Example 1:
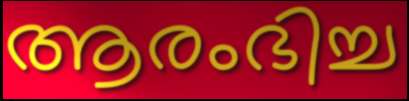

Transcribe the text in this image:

ആരംഭിച്ച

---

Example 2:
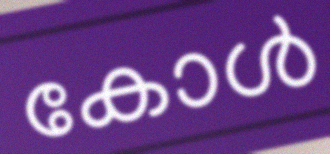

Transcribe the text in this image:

കോൾ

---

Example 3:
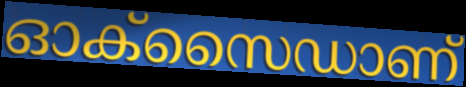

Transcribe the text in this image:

ഓക്സൈഡാണ്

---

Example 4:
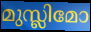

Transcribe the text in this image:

മുസ്ലിമോ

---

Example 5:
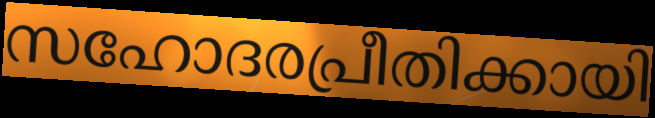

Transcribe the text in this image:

സഹോദരപ്രീതിക്കായി